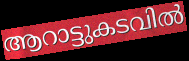
ആറാട്ടുകടവിൽ